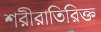
শরীরাতিরিক্ত